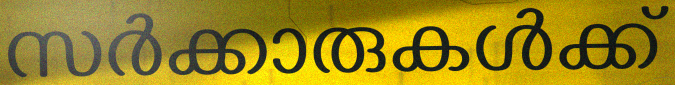
സർക്കാരുകൾക്ക്